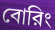
বোরিং